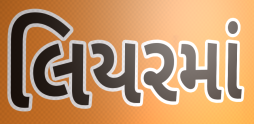
લિયરમાં